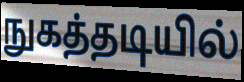
நுகத்தடியில்